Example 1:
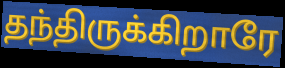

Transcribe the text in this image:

தந்திருக்கிறாரே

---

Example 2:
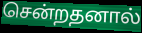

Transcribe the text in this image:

சென்றதனால்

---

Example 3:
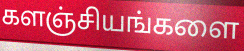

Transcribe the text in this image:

களஞ்சியங்களை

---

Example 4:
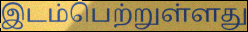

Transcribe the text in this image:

இடம்பெற்றுள்ளது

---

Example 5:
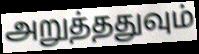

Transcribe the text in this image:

அறுத்ததுவும்